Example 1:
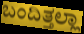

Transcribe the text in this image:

ಬಂದಿತ್ತಲ್ಲಾ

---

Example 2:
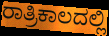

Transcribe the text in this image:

ರಾತ್ರಿಕಾಲದಲ್ಲಿ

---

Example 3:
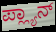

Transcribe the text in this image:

ಪ್ಲ್ಯಾನ್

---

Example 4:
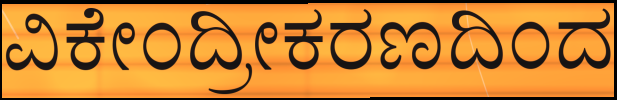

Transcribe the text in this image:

ವಿಕೇಂದ್ರೀಕರಣದಿಂದ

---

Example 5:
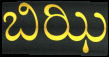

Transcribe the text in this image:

ಬಿಝಿ